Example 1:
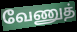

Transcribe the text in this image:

வேணுத்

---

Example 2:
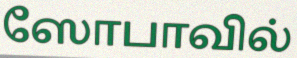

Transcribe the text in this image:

ஸோபாவில்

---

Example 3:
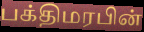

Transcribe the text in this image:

பக்திமரபின்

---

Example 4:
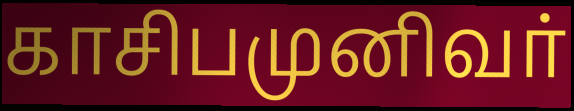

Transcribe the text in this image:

காசிபமுனிவர்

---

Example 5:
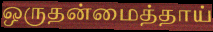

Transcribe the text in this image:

ஒருதன்மைத்தாய்